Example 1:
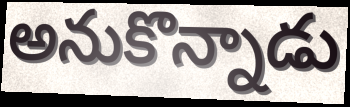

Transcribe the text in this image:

అనుకొన్నాడు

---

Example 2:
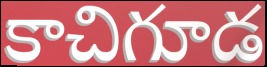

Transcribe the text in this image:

కాచిగూడ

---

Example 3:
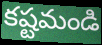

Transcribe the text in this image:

కష్టమండి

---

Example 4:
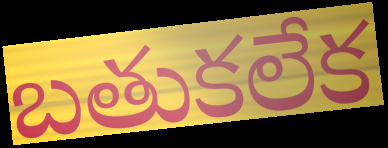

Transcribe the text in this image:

బతుకలేక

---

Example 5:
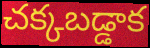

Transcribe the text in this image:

చక్కబడ్డాక